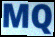
MQ